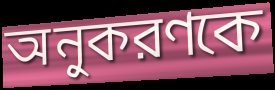
অনুকরণকে